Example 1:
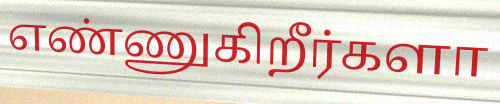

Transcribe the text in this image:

எண்ணுகிறீர்களா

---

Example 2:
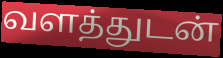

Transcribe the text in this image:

வளத்துடன்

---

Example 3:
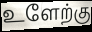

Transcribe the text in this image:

உளேற்கு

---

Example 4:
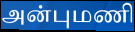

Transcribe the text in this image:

அன்புமணி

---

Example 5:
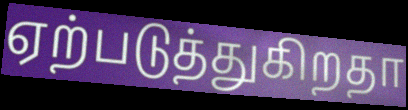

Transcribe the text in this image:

ஏற்படுத்துகிறதா